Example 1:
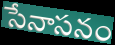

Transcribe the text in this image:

సేనాసనం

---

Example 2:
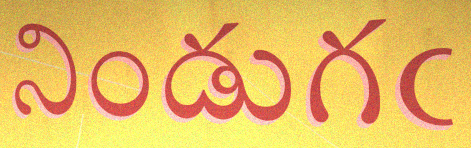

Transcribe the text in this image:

నిండుగఁ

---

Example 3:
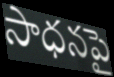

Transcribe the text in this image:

సాధనపై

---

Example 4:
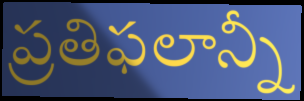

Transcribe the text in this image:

ప్రతిఫలాన్నీ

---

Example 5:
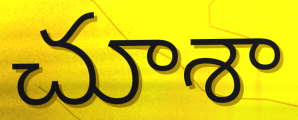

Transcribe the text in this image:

చూశా